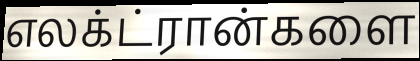
எலக்ட்ரான்களை